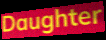
Daughter